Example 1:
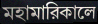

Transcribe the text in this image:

মহামারিকালে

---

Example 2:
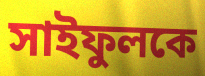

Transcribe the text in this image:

সাইফুলকে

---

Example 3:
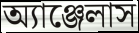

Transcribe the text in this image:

অ্যাঞ্জেলাস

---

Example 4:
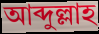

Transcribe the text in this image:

আব্দুল্লাহ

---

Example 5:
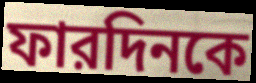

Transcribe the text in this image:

ফারদিনকে